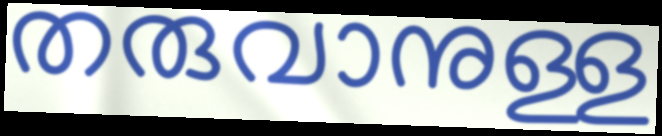
തരുവാനുള്ള